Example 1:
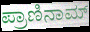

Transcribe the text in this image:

ಪ್ರಾಣಿನಾಮ್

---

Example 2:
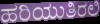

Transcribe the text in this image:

ಹರಿಯುತಿರಲಿ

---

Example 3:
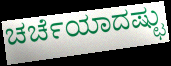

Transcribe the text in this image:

ಚರ್ಚೆಯಾದಷ್ಟು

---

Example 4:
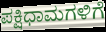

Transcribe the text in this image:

ಪಕ್ಷಿಧಾಮಗಳಿಗೆ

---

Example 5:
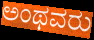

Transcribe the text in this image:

ಅಂಥವರು